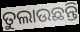
ତୁଲାଉଛନ୍ତି